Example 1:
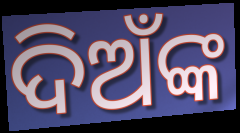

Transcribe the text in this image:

ଦିଅଁଙ୍କ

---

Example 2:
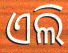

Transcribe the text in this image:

ଏଲି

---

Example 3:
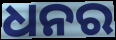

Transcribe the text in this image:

ଧନର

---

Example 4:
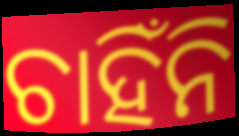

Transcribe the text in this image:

ଚାହିଁନି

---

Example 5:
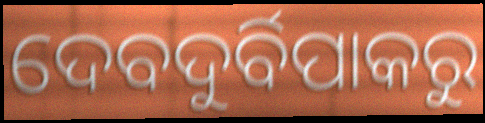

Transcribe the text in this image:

ଦେବଦୁର୍ବିପାକରୁ